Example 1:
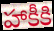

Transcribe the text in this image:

హాకీకి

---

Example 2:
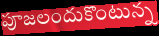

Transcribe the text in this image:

పూజలందుకొంటున్న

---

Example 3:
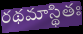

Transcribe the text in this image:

రథమాస్థితః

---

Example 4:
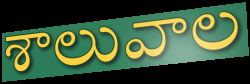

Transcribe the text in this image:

శాలువాల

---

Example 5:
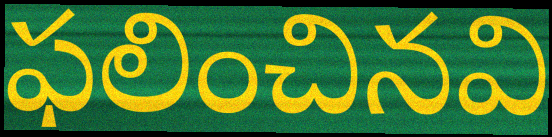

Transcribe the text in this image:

ఫలించినవి